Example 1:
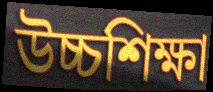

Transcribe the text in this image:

উচ্চশিক্ষা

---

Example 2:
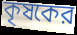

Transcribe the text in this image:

কৃষকের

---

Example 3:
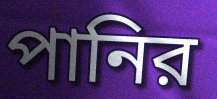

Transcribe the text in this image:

পানির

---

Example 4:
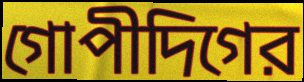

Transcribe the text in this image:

গোপীদিগের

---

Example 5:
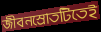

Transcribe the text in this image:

জীবনস্রোতটিতেই